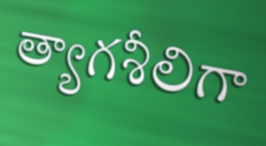
త్యాగశీలిగా